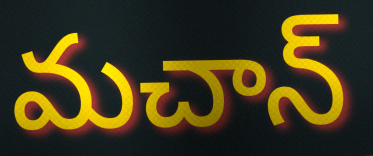
మచాన్